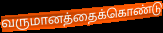
வருமானத்தைக்கொண்டு